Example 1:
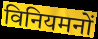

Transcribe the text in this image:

विनियमनों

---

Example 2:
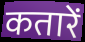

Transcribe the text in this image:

कतारें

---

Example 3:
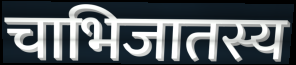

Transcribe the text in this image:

चाभिजातस्य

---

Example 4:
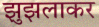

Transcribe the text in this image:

झुझलाकर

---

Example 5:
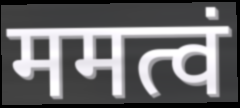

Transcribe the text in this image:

ममत्वं